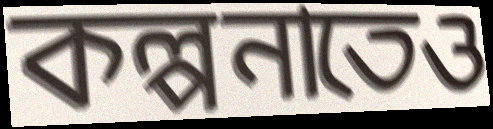
কল্পনাতেও